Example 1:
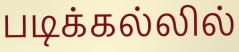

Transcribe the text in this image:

படிக்கல்லில்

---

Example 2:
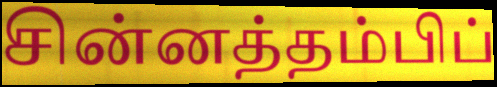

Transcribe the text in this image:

சின்னத்தம்பிப்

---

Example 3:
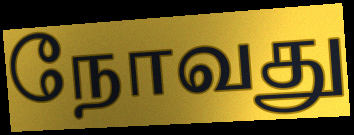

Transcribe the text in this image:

நோவது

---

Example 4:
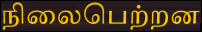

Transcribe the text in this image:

நிலைபெற்றன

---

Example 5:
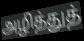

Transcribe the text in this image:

அழித்துத்